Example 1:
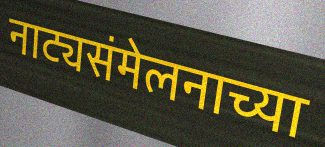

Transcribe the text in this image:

नाट्यसंमेलनाच्या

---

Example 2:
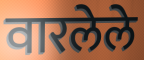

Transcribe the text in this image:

वारलेले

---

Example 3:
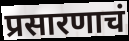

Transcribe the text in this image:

प्रसारणाचं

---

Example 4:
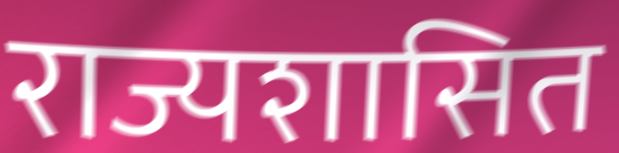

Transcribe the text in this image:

राज्यशासित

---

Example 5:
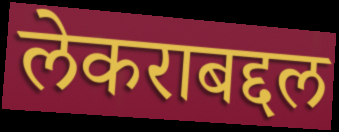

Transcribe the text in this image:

लेकराबद्दल